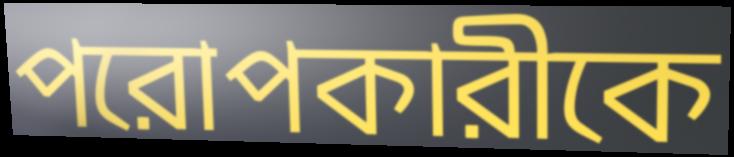
পরোপকারীকে